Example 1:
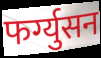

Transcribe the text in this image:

फर्ग्युसन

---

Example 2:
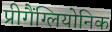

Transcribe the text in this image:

प्रीगैंग्लियोनिक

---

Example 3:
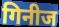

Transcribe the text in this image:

गिनीज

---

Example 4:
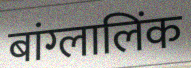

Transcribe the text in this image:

बांग्लालिंक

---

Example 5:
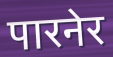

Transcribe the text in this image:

पारनेर